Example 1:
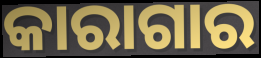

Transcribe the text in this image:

କାରାଗାର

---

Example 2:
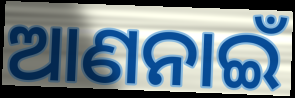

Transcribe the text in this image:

ଆଣନାଇଁ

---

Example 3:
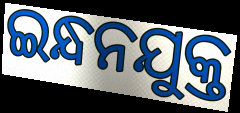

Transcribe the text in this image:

ଇନ୍ଧନଯୁକ୍ତ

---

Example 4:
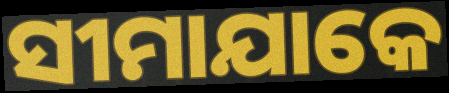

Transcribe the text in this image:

ସୀମାଯାକେ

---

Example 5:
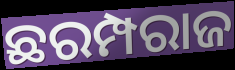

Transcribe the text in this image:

ଛରମ୍ପରାଜ